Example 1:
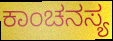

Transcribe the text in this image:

ಕಾಂಚನಸ್ಯ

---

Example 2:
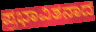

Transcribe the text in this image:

ಪ್ರಭಾವಿತನಾದ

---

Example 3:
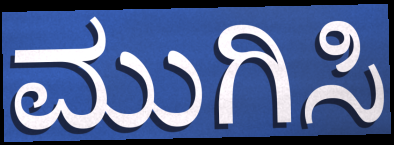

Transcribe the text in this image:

ಮುಗಿಸಿ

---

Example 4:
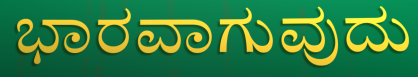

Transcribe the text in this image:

ಭಾರವಾಗುವುದು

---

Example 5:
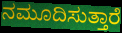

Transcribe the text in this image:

ನಮೂದಿಸುತ್ತಾರೆ